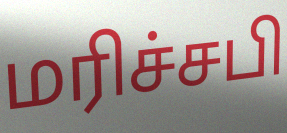
மரிச்சபி